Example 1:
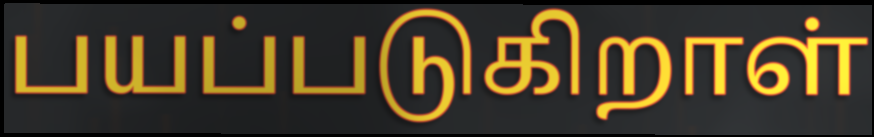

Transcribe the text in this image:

பயப்படுகிறாள்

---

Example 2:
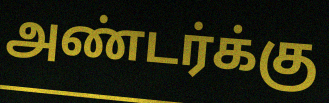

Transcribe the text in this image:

அண்டர்க்கு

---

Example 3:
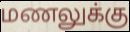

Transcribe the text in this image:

மணலுக்கு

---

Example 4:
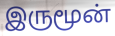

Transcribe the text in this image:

இருமூன்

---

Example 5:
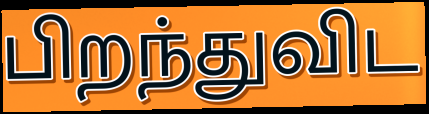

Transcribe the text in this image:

பிறந்துவிட